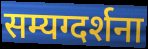
सम्यग्दर्शना